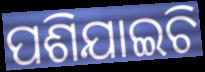
ପଶିଯାଇଚି